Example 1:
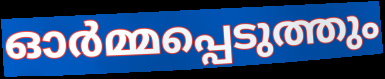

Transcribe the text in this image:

ഓർമ്മപ്പെടുത്തും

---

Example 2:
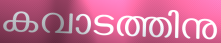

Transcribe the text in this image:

കവാടത്തിനു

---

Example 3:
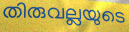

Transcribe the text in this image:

തിരുവല്ലയുടെ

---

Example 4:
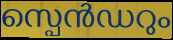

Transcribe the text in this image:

സ്പെൻഡറും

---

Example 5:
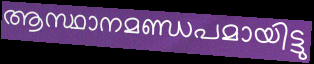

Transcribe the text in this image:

ആസ്ഥാനമണ്ഡപമായിട്ടു